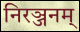
निरञ्जनम्